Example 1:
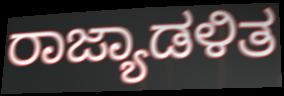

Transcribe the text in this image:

ರಾಜ್ಯಾಡಳಿತ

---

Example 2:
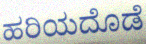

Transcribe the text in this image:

ಹರಿಯದೊಡೆ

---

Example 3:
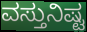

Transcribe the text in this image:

ವಸ್ತುನಿಷ್ಟ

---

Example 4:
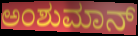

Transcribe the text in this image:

ಅಂಶುಮಾನ್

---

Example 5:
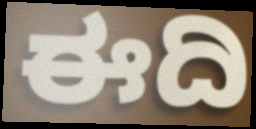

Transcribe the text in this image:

ಈದಿ